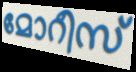
മോറീസ്